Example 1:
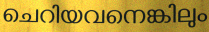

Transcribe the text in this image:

ചെറിയവനെങ്കിലും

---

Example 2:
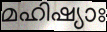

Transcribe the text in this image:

മഹിഷ്യാഃ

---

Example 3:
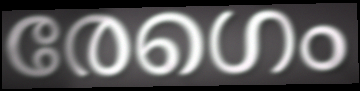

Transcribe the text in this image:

രേഗെം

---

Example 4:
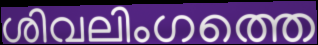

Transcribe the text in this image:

ശിവലിംഗത്തെ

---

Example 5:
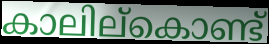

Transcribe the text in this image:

കാലില്കൊണ്ട്